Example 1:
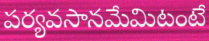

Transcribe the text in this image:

పర్యవసానమేమిటంటే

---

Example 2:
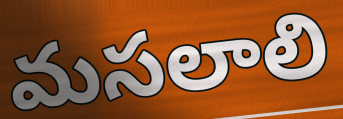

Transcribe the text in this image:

మసలాలి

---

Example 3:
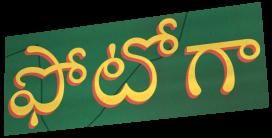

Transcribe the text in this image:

ఫోటోగా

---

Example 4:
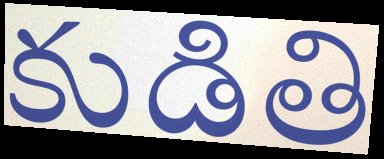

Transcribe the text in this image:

కుడితి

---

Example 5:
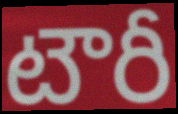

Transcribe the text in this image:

టౌరీ